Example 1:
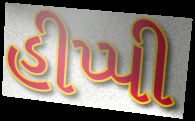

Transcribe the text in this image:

હીપ્પી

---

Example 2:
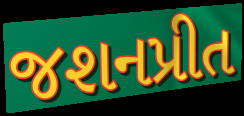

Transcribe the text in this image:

જશનપ્રીત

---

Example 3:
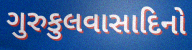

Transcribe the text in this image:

ગુરુકુલવાસાદિનો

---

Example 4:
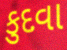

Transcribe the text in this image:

કુદવા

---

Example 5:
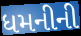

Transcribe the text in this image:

ધમનીની